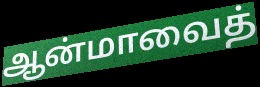
ஆன்மாவைத்